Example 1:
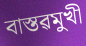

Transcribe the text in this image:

বাস্তৱমুখী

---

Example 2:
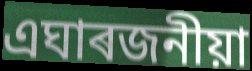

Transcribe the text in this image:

এঘাৰজনীয়া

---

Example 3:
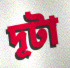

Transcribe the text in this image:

দূটা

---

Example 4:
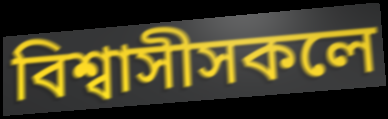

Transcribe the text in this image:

বিশ্বাসীসকলে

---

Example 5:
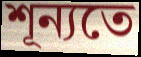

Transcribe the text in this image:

শূন্যতে